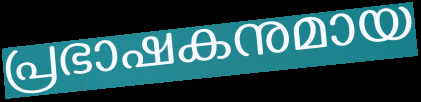
പ്രഭാഷകനുമായ